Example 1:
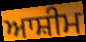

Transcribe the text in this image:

ਆਸ਼ੀਮ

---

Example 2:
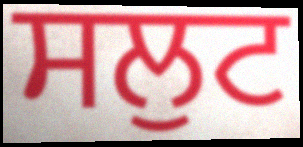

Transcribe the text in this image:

ਸਲੁਟ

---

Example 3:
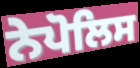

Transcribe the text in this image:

ਨੇਪੋਲਿਸ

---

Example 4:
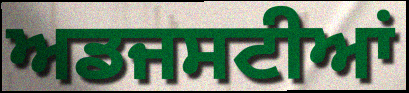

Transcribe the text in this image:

ਅਡਜਸਟੀਆਂ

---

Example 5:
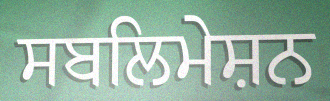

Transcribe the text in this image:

ਸਬਲਿਮੇਸ਼ਨ